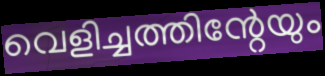
വെളിച്ചത്തിന്റേയും